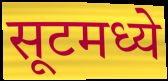
सूटमध्ये